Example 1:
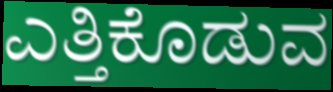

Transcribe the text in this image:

ಎತ್ತಿಕೊಡುವ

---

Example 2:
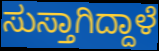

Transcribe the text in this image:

ಸುಸ್ತಾಗಿದ್ದಾಳೆ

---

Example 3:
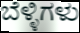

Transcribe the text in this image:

ಬೆಳ್ಳಿಗಳು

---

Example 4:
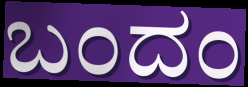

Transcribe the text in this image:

ಬಂದಂ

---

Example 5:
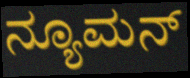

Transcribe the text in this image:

ನ್ಯೂಮನ್